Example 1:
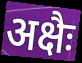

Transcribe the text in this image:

अक्षैः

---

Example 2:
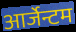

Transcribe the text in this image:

आर्जेन्टम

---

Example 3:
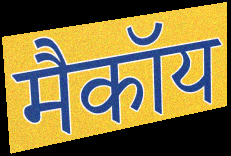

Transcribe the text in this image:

मैकॉय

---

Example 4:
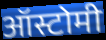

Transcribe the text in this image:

ऑस्टोमी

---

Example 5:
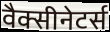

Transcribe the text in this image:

वैक्सीनेटर्स